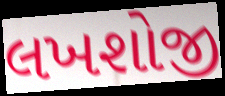
લખશોજી